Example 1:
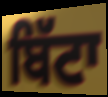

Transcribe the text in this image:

ਬਿੱਟਾ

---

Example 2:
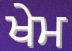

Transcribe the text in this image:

ਖੇਮ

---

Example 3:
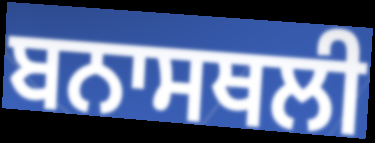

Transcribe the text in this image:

ਬਨਾਸਥਲੀ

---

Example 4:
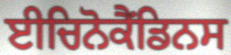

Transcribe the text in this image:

ਈਚਿਨੋਕੈਂਡਿਨਸ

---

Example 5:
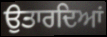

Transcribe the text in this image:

ਉਤਾਰਦਿਆਂ